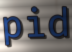
pid